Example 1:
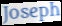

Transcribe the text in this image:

Joseph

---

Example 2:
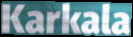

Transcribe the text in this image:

Karkala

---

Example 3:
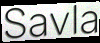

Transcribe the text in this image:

Savla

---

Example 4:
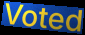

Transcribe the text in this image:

Voted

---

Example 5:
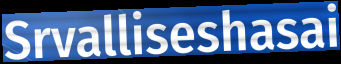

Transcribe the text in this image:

Srvalliseshasai